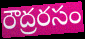
రౌద్రరసం